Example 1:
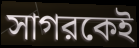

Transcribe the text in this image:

সাগরকেই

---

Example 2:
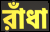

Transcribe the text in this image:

রাঁধা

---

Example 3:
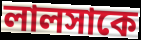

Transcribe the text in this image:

লালসাকে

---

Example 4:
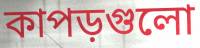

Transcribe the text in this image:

কাপড়গুলো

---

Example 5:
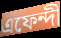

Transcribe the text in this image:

এফেন্দী